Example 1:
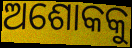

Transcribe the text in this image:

ଅଶୋକକୁ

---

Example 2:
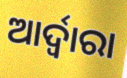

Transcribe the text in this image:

ଆର୍ଦ୍ୱାରା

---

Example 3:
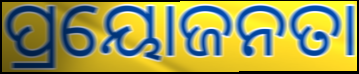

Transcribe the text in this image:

ପ୍ରୟୋଜନତା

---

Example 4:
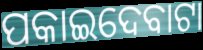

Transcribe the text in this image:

ପକାଇଦେବାଟା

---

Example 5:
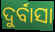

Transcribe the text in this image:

ଦୁର୍ବାସା